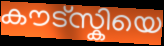
കൗട്സ്കിയെ